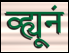
व्ह्यूनं